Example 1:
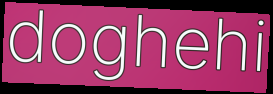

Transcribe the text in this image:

doghehi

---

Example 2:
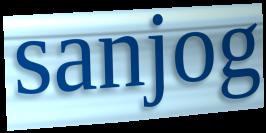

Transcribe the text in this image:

sanjog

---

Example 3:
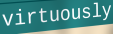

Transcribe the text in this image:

virtuously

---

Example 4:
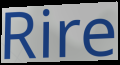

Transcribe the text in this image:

Rire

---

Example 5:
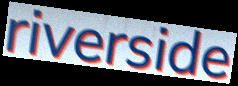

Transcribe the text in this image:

riverside